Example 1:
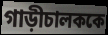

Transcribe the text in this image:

গাড়ীচালককে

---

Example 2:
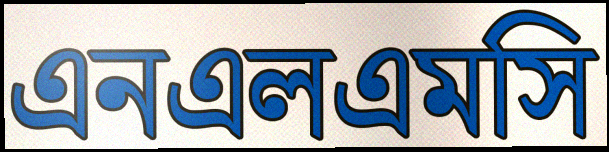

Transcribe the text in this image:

এনএলএমসি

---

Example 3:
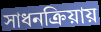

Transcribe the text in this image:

সাধনক্রিয়ায়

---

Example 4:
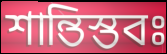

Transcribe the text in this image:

শান্তিস্তবঃ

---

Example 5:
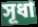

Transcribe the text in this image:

সূধা